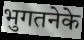
भुगतनेके